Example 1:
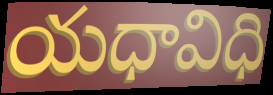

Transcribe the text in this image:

యధావిధి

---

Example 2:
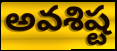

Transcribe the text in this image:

అవశిష్ట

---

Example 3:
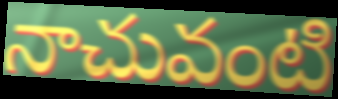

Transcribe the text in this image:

నాచువంటి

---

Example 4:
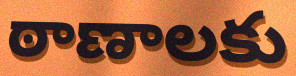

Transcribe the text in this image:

ఠాణాలకు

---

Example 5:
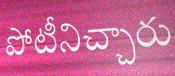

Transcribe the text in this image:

పోటీనిచ్చారు